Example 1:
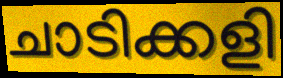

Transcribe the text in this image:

ചാടിക്കളി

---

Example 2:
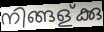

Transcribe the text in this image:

നിങ്ങള്ക്കു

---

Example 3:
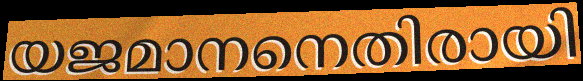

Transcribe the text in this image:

യജമാനനെതിരായി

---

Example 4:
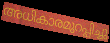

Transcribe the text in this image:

അധികാരമുറപ്പിച്ചു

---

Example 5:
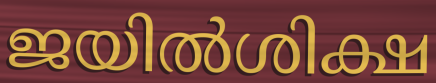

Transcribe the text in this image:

ജയിൽശിക്ഷ